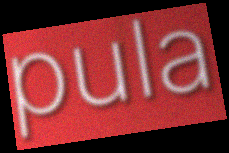
pula